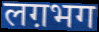
लग़भग